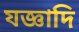
যজ্ঞাদি